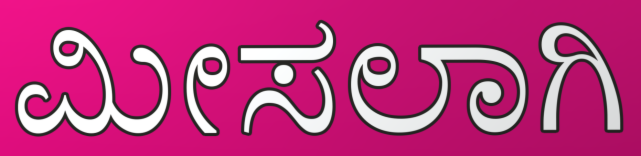
ಮೀಸಲಾಗಿ